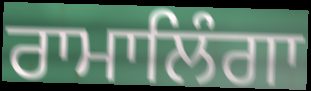
ਰਾਮਾਲਿੰਗਾ